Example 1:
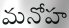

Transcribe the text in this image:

మనోహ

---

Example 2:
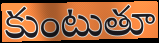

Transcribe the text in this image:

కుంటుతూ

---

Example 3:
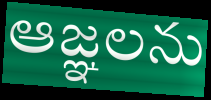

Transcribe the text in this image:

ఆజ్ఞలను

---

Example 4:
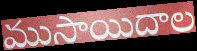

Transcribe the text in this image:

ముసాయిదాల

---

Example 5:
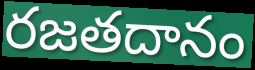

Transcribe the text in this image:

రజతదానం